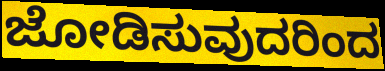
ಜೋಡಿಸುವುದರಿಂದ